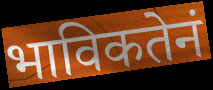
भाविकतेनं